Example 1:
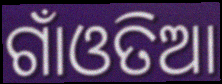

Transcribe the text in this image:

ଗାଁଓତିଆ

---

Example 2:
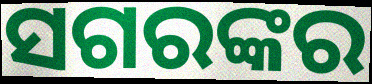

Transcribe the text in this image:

ସଗରଙ୍କର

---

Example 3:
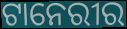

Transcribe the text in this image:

ଟାନେରୀର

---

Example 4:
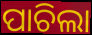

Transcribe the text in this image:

ପାଚିଲା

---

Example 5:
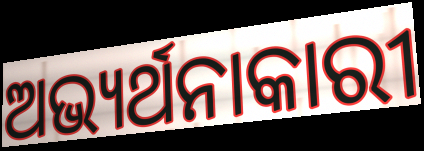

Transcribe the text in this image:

ଅଭ୍ୟର୍ଥନାକାରୀ